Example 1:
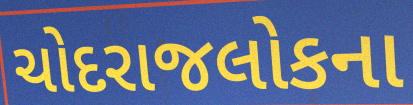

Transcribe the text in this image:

ચોદરાજલોકના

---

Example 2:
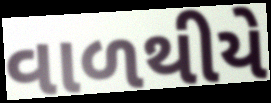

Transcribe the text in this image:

વાળથીયે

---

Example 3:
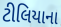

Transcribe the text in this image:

ટીલિયાના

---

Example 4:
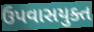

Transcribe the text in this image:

ઉપવાસયુક્ત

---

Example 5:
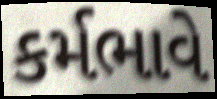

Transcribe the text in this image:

કર્મભાવે